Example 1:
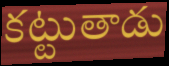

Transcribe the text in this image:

కట్టుతాడు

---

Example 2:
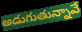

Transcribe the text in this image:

అడుగుతున్నావే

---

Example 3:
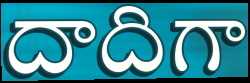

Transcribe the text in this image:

దాదిగా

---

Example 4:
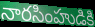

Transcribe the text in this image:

నారసింహుడికి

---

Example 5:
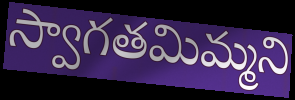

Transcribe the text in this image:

స్వాగతమిమ్మని